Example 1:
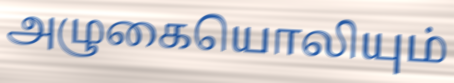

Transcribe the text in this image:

அழுகையொலியும்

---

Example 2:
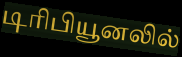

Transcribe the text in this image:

டிரிபியூனலில்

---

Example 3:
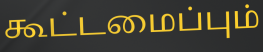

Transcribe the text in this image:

கூட்டமைப்பும்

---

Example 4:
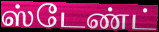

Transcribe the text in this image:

ஸ்டேண்ட்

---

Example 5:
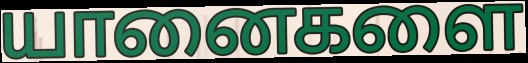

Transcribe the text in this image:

யானைகளை